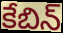
కేబిన్